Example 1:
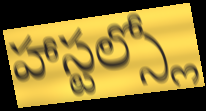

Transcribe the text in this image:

హాస్టల్స్లో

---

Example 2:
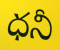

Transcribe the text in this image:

ధనీ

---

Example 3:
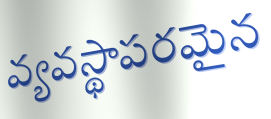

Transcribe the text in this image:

వ్యవస్థాపరమైన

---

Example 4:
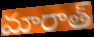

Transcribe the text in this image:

మారాత్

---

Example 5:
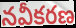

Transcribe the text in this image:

నవీకరణ